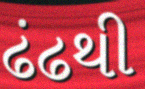
ઢંઢથી